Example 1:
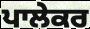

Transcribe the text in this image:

ਪਾਲੇਕਰ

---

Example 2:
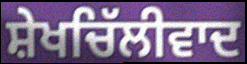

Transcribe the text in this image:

ਸ਼ੇਖਚਿੱਲੀਵਾਦ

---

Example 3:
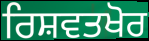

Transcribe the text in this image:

ਰਿਸ਼ਵਤਖੋਰ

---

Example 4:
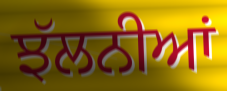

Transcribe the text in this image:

ਝੱਲਨੀਆਂ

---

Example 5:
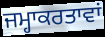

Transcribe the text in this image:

ਜਮ੍ਹਾਕਰਤਾਵਾਂ